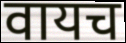
वायच